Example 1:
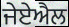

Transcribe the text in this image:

ਜੇਏਐਲ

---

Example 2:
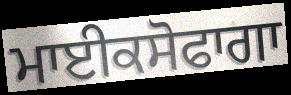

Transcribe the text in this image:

ਮਾਈਕਸੋਫਾਗਾ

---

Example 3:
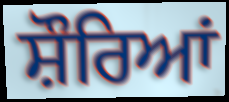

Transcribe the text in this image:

ਸ਼ੌਰਿਆਂ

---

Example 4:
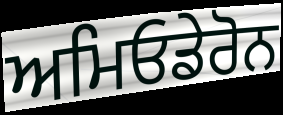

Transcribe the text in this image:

ਅਮਿਓਡੇਰੋਨ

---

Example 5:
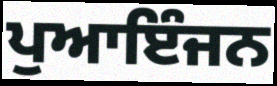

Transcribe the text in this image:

ਪੁਆਇੰਜਨ